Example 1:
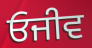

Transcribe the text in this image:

ਓਜੀਵ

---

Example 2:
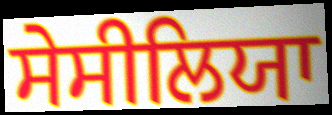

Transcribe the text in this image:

ਸੇਸੀਲਿਯਾ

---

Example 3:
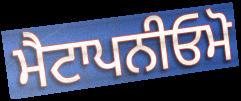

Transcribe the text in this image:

ਮੈਟਾਪਨੀਓਮੋ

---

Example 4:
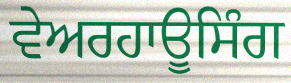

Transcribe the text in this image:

ਵੇਅਰਹਾਊਸਿੰਗ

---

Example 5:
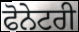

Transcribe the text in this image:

ਫੋਨੇਟਰੀ